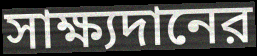
সাক্ষ্যদানের